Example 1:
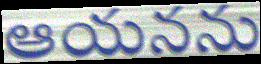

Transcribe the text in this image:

ఆయనను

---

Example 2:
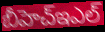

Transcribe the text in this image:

బీహెచ్ఇఎల్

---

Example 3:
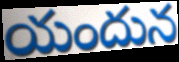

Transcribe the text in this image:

యందున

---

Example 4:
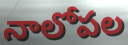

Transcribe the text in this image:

నాలోపల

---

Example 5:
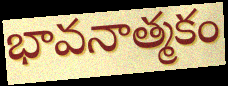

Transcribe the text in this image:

భావనాత్మకం